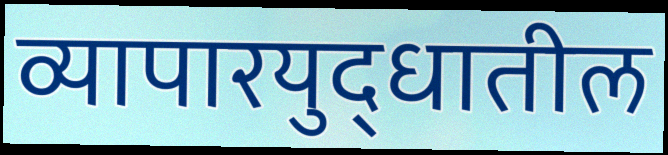
व्यापारयुद्धातील